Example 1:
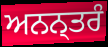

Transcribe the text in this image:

ਅਨਨ੍ਤਰੰ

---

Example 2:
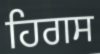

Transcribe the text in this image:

ਹਿਗਸ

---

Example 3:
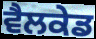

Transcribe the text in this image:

ਵੈਲਕੇਡ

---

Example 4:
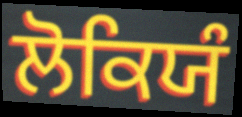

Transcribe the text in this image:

ਲੋਕਿਯੰ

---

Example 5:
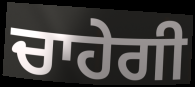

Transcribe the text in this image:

ਚਾਹੇਗੀ